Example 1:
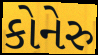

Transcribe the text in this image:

કોનેરુ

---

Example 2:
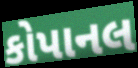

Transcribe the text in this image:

કોપાનલ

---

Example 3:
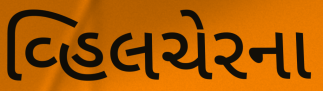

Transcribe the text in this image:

વ્હિલચેરના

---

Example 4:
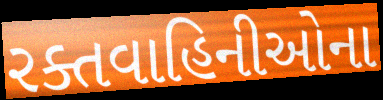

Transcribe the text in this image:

રક્તવાહિનીઓના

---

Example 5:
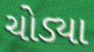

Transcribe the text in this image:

ચોડ્યા